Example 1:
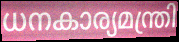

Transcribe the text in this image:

ധനകാര്യമന്ത്രി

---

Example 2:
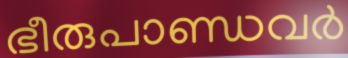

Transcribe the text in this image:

ഭീരുപാണ്ഡവർ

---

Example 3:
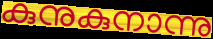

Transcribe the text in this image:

കുനുകുനാന്നു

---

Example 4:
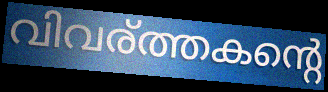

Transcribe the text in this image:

വിവര്ത്തകന്റെ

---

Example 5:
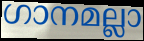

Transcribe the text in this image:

ഗാനമല്ലാ